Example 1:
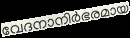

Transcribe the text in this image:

വേദനാനിർഭരമായ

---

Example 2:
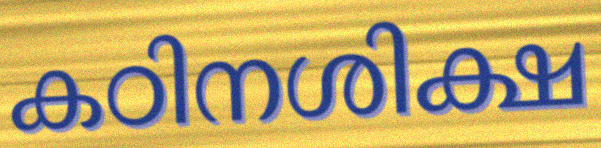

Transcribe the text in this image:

കഠിനശിക്ഷ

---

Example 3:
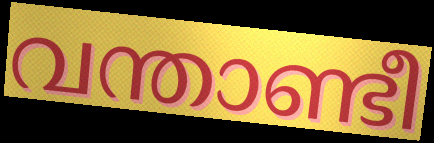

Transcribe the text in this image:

വന്താണ്ടീ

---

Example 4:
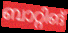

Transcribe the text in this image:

ബാറ്റിങ്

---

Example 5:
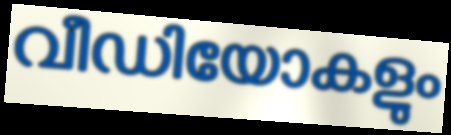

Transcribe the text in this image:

വീഡിയോകളും